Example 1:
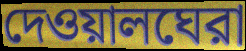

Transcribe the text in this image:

দেওয়ালঘেরা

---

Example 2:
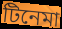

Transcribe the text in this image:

টিনেমা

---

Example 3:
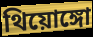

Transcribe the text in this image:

থিয়োঙ্গো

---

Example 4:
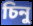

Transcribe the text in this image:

চিনু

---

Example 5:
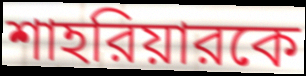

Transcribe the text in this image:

শাহরিয়ারকে